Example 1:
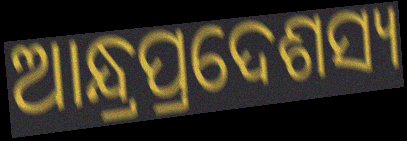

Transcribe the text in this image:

ଆନ୍ଧ୍ରପ୍ରଦେଶସ୍ୟ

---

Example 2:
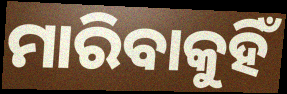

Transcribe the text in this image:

ମାରିବାକୁହିଁ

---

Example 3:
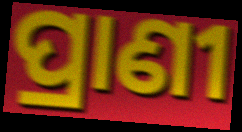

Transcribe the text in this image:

ପ୍ରାଣୀ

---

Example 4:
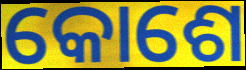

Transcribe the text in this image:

କୋଶେ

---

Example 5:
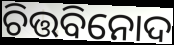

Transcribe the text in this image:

ଚିତ୍ତବିନୋଦ